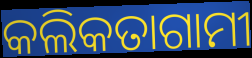
କଲିକତାଗାମୀ